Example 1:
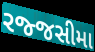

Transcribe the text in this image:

રજ્જસીમા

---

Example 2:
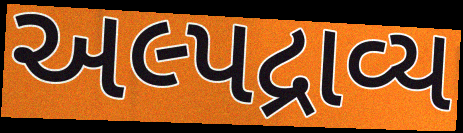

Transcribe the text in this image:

અલ્પદ્રાવ્ય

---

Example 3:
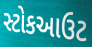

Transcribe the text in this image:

સ્ટોકઆઉટ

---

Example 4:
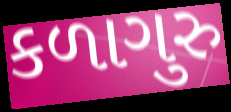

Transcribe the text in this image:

કળાગુરુ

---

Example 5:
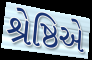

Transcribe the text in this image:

શ્રેષ્ઠિએ